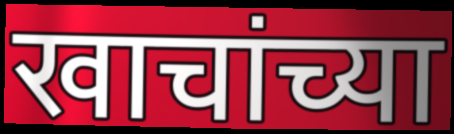
खाचांच्या